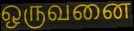
ஒருவனை